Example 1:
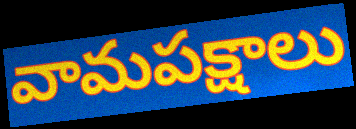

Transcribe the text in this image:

వామపక్షాలు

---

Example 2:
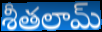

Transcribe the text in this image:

శీతలామ్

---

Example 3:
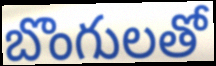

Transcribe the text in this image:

బొంగులతో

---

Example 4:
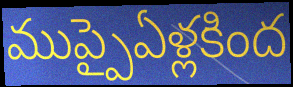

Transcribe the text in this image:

ముప్పైఏళ్లకింద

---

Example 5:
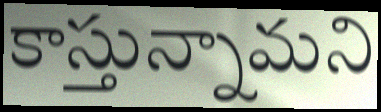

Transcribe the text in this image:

కాస్తున్నామని